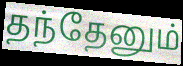
தந்தேனும்